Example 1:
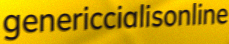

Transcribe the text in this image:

genericcialisonline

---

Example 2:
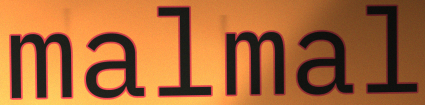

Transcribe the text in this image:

malmal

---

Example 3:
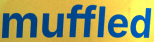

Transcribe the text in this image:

muffled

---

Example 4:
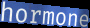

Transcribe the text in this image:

hormone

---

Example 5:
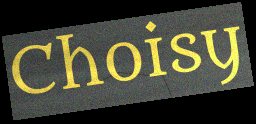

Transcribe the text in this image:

Choisy